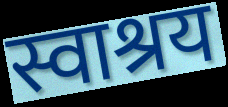
स्वाश्रय